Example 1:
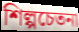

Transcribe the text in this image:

শিল্পচেতনা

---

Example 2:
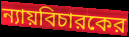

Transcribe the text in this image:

ন্যায়বিচারকের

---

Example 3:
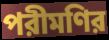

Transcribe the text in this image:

পরীমণির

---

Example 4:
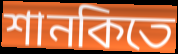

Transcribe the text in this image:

শানকিতে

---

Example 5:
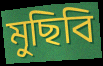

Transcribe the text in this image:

মুছিবি